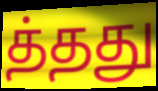
த்தது